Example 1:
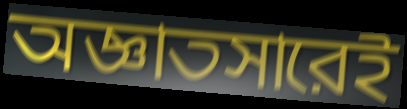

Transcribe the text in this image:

অজ্ঞাতসারেই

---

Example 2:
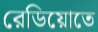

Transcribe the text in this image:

রেডিয়োতে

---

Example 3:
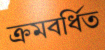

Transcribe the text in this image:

ক্রমবর্ধিত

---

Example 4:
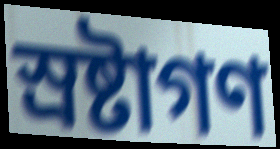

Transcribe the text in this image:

স্রষ্টাগণ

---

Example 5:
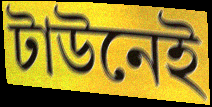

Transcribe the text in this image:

টাউনেই